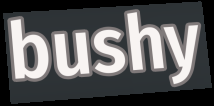
bushy